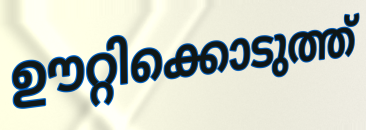
ഊറ്റിക്കൊടുത്ത്